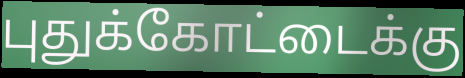
புதுக்கோட்டைக்கு